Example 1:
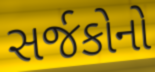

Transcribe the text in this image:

સર્જકોનો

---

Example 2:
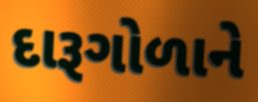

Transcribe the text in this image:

દારૂગોળાને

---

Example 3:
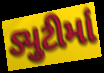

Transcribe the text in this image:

ડ્યુટીમાં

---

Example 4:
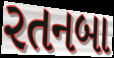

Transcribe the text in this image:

રતનબા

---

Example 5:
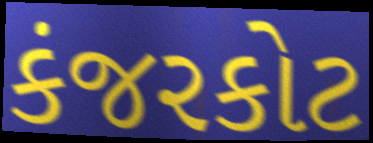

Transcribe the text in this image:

કંજરકોટ